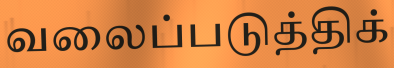
வலைப்படுத்திக்